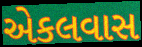
એકલવાસ